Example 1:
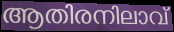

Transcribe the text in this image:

ആതിരനിലാവ്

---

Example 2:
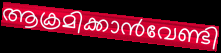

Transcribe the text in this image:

ആക്രമിക്കാൻവേണ്ടി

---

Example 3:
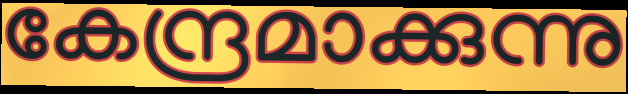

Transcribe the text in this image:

കേന്ദ്രമാക്കുന്നു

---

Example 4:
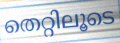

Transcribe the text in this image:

തെറ്റിലൂടെ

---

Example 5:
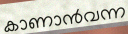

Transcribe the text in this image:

കാണാൻവന്ന